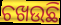
ଚଖଉଛି